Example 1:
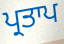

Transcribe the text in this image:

ਪ੍ਰਤਾਪ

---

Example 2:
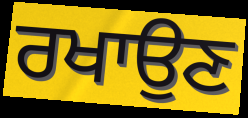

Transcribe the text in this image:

ਰਖਾਉਣ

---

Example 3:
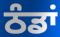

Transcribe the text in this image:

ਠੰਡਾਂ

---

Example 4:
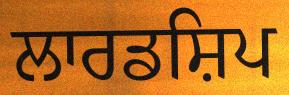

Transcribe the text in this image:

ਲਾਰਡਸ਼ਿਪ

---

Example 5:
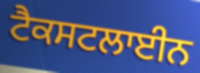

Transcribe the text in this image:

ਟੈਕਸਟਲਾਈਨ